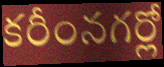
కరీంనగర్లో